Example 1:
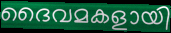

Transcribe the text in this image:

ദൈവമകളായി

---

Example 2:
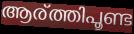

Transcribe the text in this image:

ആര്ത്തിപൂണ്ട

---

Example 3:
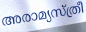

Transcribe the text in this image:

അരാമ്യസ്ത്രീ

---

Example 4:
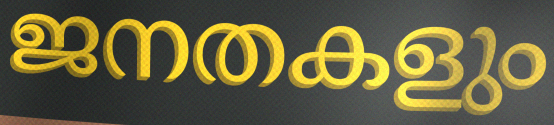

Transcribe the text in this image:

ജനതകളും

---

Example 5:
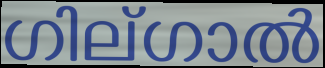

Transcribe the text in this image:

ഗില്ഗാൽ